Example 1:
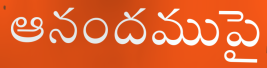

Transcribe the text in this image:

ఆనందముపై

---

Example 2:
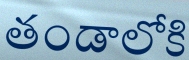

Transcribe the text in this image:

తండాలోకి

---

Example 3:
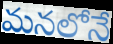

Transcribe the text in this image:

మనలోనే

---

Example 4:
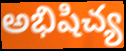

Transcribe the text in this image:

అభిషిచ్య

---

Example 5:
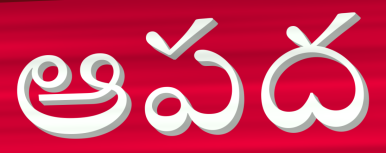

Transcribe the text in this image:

ఆపద